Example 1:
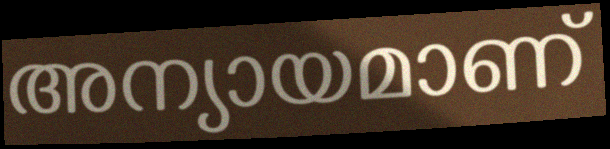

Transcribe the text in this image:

അന്യായമാണ്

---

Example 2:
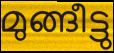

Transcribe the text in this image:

മുങ്ങീട്ടു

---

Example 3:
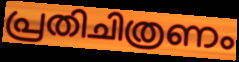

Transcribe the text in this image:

പ്രതിചിത്രണം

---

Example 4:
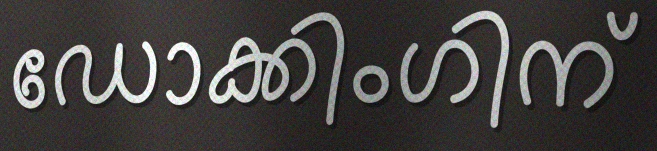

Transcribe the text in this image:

ഡോക്കിംഗിന്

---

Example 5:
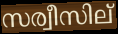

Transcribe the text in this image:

സര്വീസില്